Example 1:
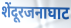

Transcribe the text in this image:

शेंदूरजनाघाट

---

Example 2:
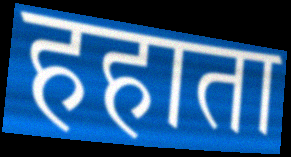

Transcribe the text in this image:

हहाता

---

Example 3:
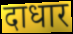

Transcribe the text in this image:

दाधार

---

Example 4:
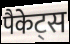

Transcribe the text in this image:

पैकेट्स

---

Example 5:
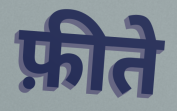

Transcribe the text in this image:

फ़ीते